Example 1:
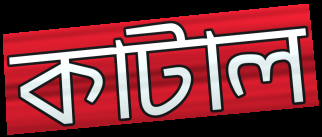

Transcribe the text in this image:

কাটাল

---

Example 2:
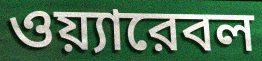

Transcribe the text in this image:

ওয়্যারেবল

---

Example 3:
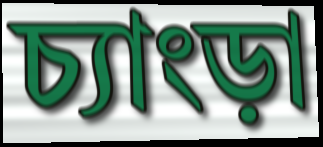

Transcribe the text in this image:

চ্যাংড়া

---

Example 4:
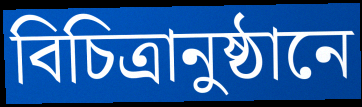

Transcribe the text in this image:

বিচিত্রানুষ্ঠানে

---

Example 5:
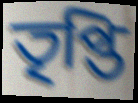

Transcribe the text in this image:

তৃপ্তি